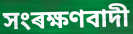
সংৰক্ষণবাদী